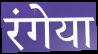
रंगेया